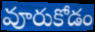
వూరుకోడం